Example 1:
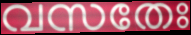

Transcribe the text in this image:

വസതേഃ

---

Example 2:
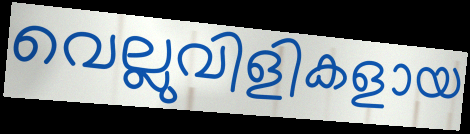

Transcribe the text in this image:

വെല്ലുവിളികളായ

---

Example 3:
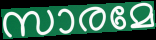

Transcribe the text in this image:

സാരമേ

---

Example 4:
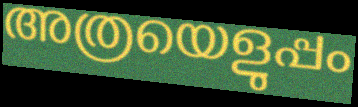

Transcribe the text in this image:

അത്രയെളുപ്പം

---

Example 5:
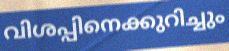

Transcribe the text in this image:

വിശപ്പിനെക്കുറിച്ചും